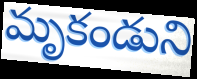
మృకండుని